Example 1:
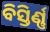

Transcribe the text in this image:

ବିସ୍ତିର୍ଣ୍ଣ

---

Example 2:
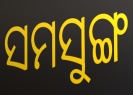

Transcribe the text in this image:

ସମସୁଙ୍ଗ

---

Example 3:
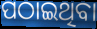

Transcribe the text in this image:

ପଠାଇଥିବା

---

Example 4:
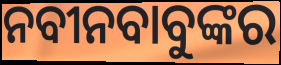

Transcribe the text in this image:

ନବୀନବାବୁଙ୍କର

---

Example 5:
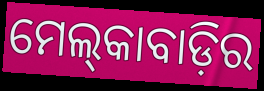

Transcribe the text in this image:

ମେଲ୍‌କାବାଡ଼ିର